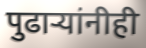
पुढाऱ्यांनीही